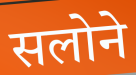
सलोने